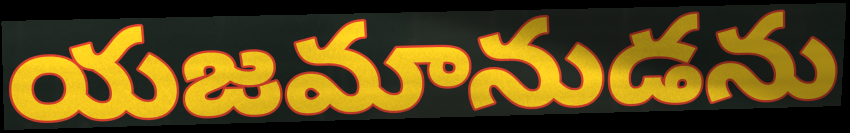
యజమానుడను